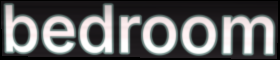
bedroom